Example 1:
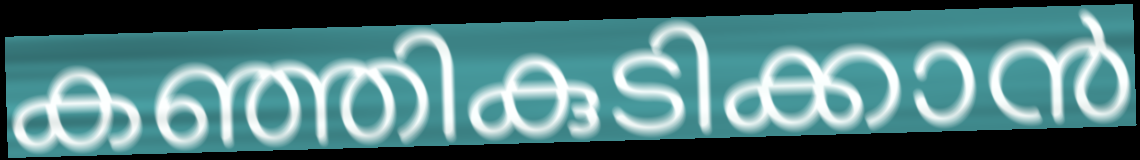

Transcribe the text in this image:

കഞ്ഞികുടിക്കാൻ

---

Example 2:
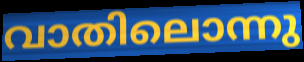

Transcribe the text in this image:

വാതിലൊന്നു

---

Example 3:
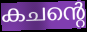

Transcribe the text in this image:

കചന്റെ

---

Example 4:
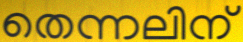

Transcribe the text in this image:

തെന്നലിന്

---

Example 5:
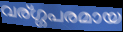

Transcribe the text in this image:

വര്ഗ്ഗപരമായ